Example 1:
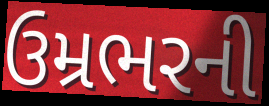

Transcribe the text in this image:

ઉમ્રભરની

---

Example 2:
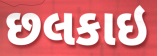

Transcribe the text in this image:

છલકાઇ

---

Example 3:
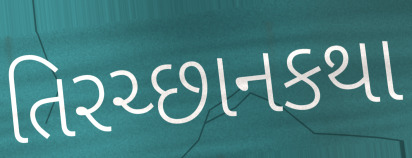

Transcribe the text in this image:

તિરચ્છાનકથા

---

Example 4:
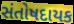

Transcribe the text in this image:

સંતોષદાયક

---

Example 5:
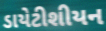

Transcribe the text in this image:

ડાયેટીશીયન